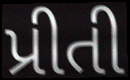
પ્રીતી